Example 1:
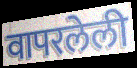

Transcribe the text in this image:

वापरलेली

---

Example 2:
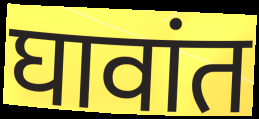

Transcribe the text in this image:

घावांत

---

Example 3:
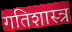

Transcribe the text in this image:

गतिशास्त्र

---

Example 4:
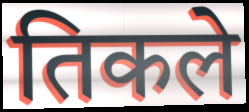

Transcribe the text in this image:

तिकले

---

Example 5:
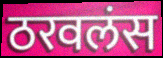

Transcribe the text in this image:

ठरवलंस